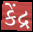
કેંદ્ર